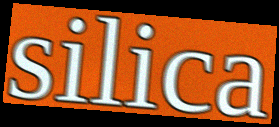
silica